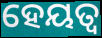
ହେୟତ୍ୱ